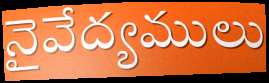
నైవేద్యములు